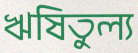
ঋষিতুল্য